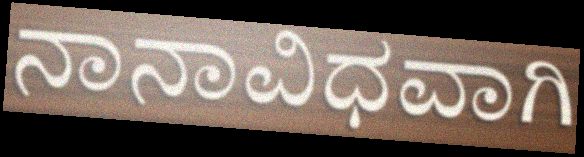
ನಾನಾವಿಧವಾಗಿ